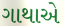
ગાથાએ